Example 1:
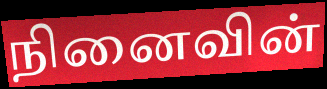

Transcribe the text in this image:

நினைவின்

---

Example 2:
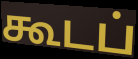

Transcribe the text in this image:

கூடப்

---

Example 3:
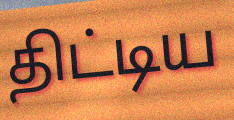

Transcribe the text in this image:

திட்டிய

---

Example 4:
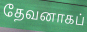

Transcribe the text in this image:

தேவனாகப்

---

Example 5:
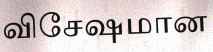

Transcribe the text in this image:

விசேஷமான